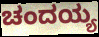
ಚಂದಯ್ಯ